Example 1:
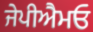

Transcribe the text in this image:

ਜੇਪੀਐਮਓ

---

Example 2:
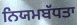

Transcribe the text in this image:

ਨਿਯਮਬੱਧਤਾ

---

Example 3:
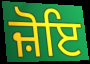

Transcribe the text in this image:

ਜ਼ੋਇ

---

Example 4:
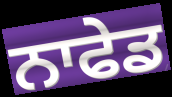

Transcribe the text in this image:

ਨਾਫੇਡ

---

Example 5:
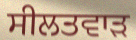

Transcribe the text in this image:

ਸੀਲਤਵਾੜ